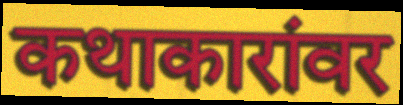
कथाकारांवर